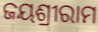
ଜୟଶ୍ରୀରାମ